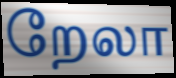
றேலா